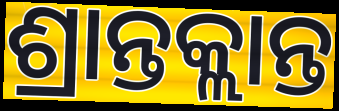
ଶ୍ରାନ୍ତକ୍ଲାନ୍ତ